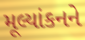
મૂલ્યાંકનને